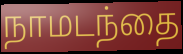
நாமடந்தை